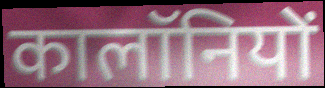
कालॉनियों